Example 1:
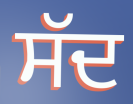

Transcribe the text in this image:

ਸੱਦ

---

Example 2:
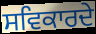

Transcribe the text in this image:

ਸਵਿਕਾਰਦੇ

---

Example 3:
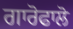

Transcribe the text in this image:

ਗਾਰੋਫਾਲੋ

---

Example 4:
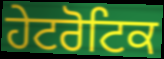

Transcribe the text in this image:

ਹੇਟਰੋਟਿਕ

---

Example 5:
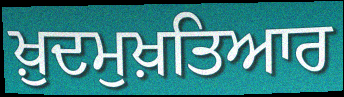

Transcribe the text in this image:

ਖ਼ੁਦਮੁਖ਼ਤਿਆਰ